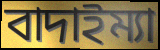
বাদাইম্যা